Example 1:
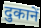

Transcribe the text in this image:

दुकानें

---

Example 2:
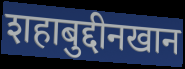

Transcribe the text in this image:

शहाबुद्दीनखान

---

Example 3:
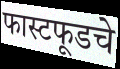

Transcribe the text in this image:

फास्टफूडचे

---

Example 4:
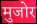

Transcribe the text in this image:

मुजोर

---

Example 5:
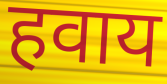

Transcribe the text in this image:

हवाय